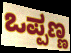
ಒಪ್ಪಣ್ಣ